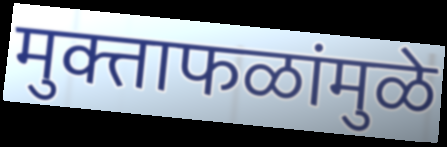
मुक्ताफळांमुळे